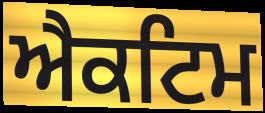
ਐਕਟਿਮ